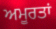
ਅਮੂਰਤਾਂ